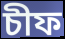
চীফ